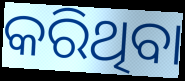
କରିଥିବା